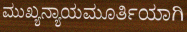
ಮುಖ್ಯನ್ಯಾಯಮೂರ್ತಿಯಾಗಿ